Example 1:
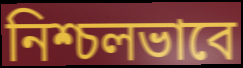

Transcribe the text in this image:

নিশ্চলভাবে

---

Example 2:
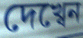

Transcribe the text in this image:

দেখ্বেন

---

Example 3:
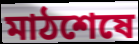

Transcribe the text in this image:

মাঠশেষে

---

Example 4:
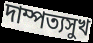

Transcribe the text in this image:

দাম্পত্যসুখ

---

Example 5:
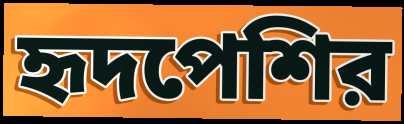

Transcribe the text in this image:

হৃদপেশির